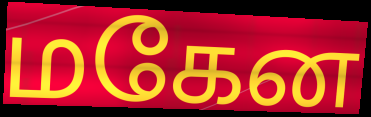
மகேன